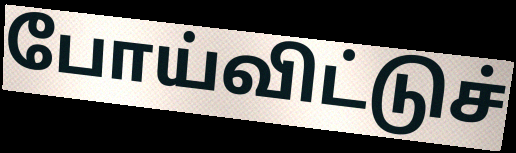
போய்விட்டுச்